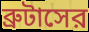
ব্রুটাসের